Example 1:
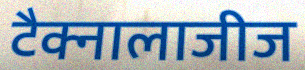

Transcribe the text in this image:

टैक्नालाजीज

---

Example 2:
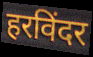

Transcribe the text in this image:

हरविंदर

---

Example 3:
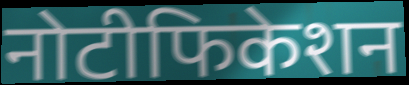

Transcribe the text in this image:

नोटीफिकेशन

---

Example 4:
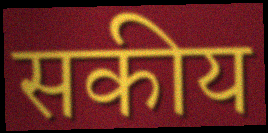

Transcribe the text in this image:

सकीय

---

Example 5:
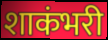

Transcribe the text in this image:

शाकंभरी